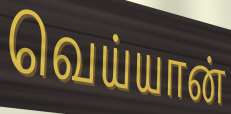
வெய்யான்